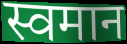
स्वमान